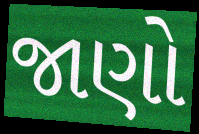
જાણો